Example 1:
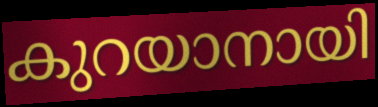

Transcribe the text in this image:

കുറയാനായി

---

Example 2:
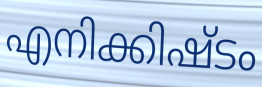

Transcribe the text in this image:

എനിക്കിഷ്ടം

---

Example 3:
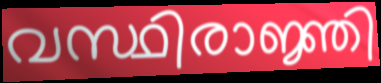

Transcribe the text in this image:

വസ്ഥിരാജ്ഞി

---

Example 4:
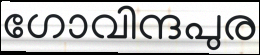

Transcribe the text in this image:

ഗോവിന്ദപുര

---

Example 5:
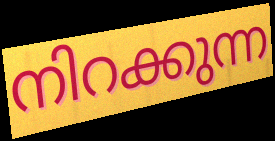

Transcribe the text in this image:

നിറക്കുന്ന